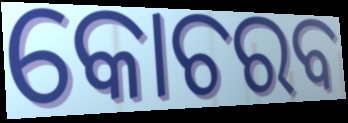
କୋଚରବ